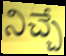
నిచ్చే